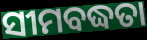
ସୀମବଦ୍ଧତା